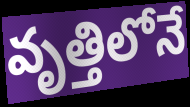
వృత్తిలోనే